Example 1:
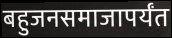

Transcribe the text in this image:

बहुजनसमाजापर्यंत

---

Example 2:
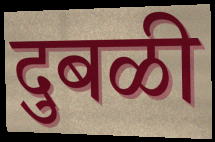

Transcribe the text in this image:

दुबळी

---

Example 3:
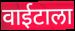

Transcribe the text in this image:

वाईटाला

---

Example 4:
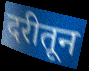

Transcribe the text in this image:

दरीतून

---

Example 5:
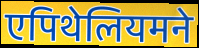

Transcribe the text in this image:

एपिथेलियमने